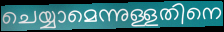
ചെയ്യാമെന്നുള്ളതിനെ